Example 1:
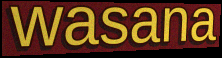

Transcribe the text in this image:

wasana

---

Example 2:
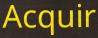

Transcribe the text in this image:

Acquir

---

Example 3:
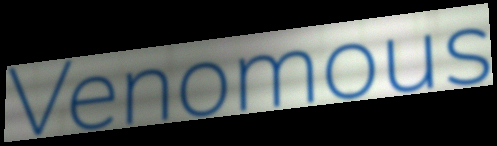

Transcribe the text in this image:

Venomous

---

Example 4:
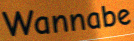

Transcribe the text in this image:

Wannabe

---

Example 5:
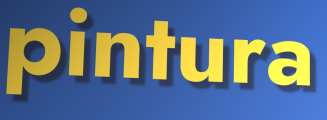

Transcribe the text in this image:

pintura